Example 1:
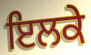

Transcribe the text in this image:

ਇਲਕੇ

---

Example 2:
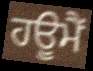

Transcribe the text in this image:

ਹਊਮੈਂ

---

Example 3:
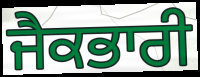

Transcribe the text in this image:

ਜੈਕਭਾਰੀ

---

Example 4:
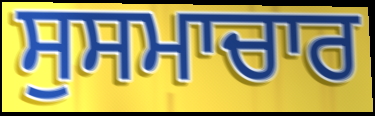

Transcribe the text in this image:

ਸੁਸਮਾਚਾਰ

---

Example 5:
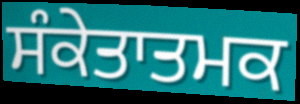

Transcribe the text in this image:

ਸੰਕੇਤਾਤਮਕ